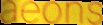
aeons